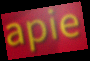
apie